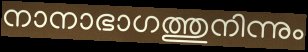
നാനാഭാഗത്തുനിന്നും